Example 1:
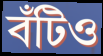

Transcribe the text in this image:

বঁটিও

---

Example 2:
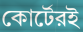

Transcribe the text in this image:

কোর্টেরই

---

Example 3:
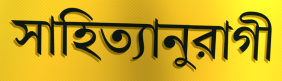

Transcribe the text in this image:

সাহিত্যানুরাগী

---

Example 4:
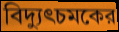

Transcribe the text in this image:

বিদ্যুৎচমকের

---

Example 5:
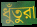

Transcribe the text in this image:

ধুঁতুরা